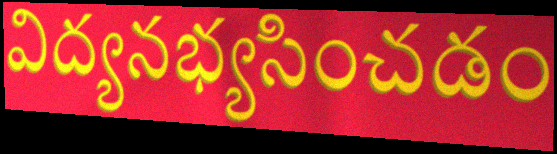
విద్యనభ్యసించడం